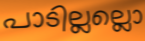
പാടില്ലല്ലൊ